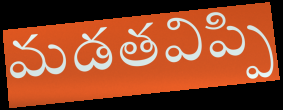
మడతవిప్పి